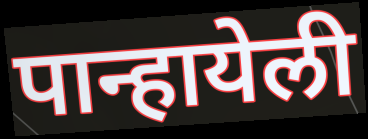
पान्हायेली